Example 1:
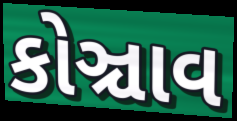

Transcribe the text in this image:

કોઞ્ચાવ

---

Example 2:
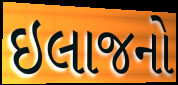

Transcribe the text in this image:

ઇલાજનો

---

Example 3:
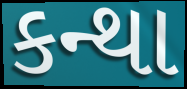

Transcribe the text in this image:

કન્થા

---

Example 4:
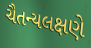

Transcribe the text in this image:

ચૈતન્યલક્ષણે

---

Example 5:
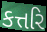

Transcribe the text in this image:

કત્તરિ